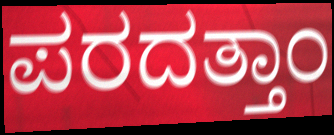
ಪರದತ್ತಾಂ